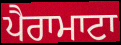
ਪੈਰਾਮਾਟਾ